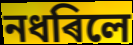
নধৰিলে